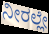
ನೀರಲ್ಲೇ